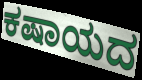
ಕಷಾಯದ